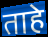
ताहे